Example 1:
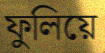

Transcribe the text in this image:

ফুলিয়ে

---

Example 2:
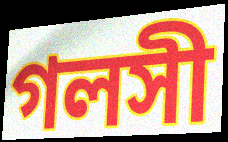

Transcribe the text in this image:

গলসী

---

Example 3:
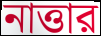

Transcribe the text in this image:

নাত্তার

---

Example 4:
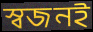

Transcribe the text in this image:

স্বজনই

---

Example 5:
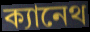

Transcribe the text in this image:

ক্যানেথ